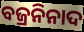
ବଜ୍ରନିନାଦ